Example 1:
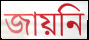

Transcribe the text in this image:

জায়নি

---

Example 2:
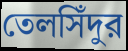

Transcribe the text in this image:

তেলসিঁদুর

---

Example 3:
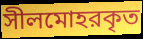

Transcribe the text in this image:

সীলমোহরকৃত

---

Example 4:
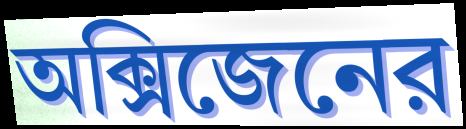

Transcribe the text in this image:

অক্সিজেনের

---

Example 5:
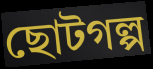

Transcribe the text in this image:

ছোটগল্প